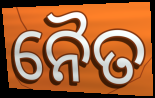
ନୈତ